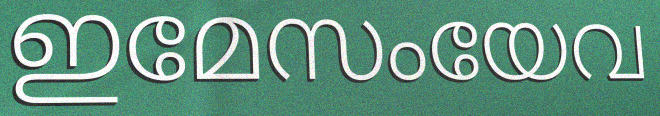
ഇമേസംയേവ